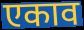
एकाव